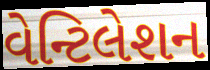
વેન્ટિલેશન